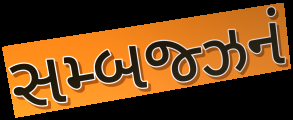
સમ્બજ્ઝનં